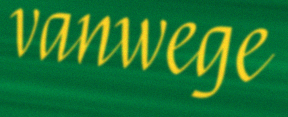
vanwege